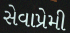
સેવાપ્રેમી